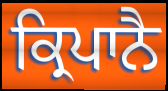
ਕ੍ਰਿਪਾਨੈ